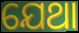
ଯେଥା